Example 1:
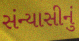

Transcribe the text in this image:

સંન્યાસીનું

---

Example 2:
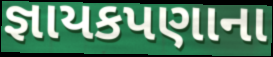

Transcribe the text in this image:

જ્ઞાયકપણાના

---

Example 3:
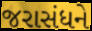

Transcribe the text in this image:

જરાસંધને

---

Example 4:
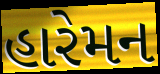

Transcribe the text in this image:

હારેમન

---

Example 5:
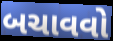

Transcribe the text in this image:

બચાવવો